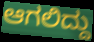
ಆಗಲಿದ್ದು